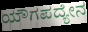
ಯೌಗಪದ್ಯೇನ